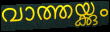
വാത്തയ്ക്കും